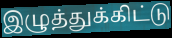
இழுத்துக்கிட்டு